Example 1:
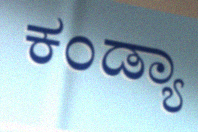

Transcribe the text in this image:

ಕಂಡ್ಯಾ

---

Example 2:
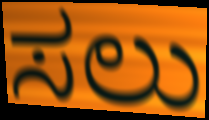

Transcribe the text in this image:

ಸಲು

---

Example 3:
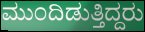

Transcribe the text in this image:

ಮುಂದಿಡುತ್ತಿದ್ದರು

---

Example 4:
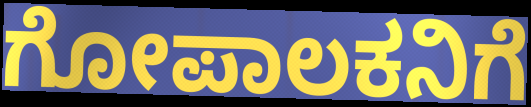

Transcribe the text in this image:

ಗೋಪಾಲಕನಿಗೆ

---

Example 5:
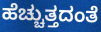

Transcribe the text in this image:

ಹೆಚ್ಚುತ್ತದಂತೆ